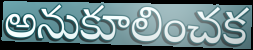
అనుకూలించక